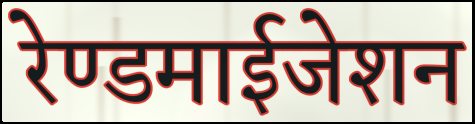
रेण्डमाईजेशन